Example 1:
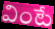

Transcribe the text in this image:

వింటే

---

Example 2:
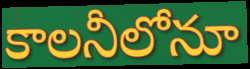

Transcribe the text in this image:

కాలనీలోనూ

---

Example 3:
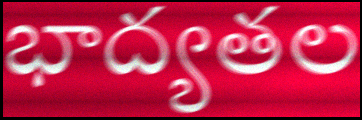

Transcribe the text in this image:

భాద్యతల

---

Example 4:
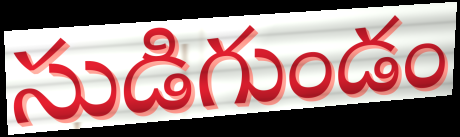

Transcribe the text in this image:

సుడిగుండం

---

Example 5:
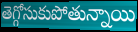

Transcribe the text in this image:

తెగ్గోసుకుపోతున్నాయి